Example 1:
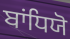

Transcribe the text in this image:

ਬਾਂਧਿਯੋ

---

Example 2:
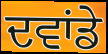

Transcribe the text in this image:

ਦਵਾਂਡੇ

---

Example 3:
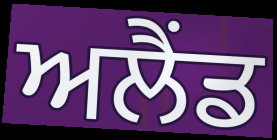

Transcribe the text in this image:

ਅਲੈਂਡ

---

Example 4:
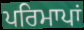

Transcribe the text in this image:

ਪਰਿਮਾਪਾਂ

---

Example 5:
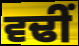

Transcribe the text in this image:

ਵਢੀਂ